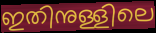
ഇതിനുള്ളിലെ